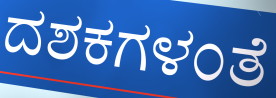
ದಶಕಗಳಂತೆ